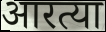
आरत्या